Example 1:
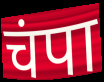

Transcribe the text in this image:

चंपा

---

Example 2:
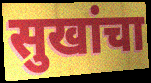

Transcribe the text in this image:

सुखांचा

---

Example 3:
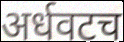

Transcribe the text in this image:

अर्धवटच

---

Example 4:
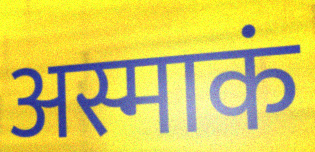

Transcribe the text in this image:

अस्माकं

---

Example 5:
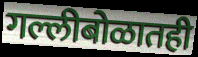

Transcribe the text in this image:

गल्लीबोळातही